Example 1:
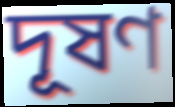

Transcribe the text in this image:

দূষণ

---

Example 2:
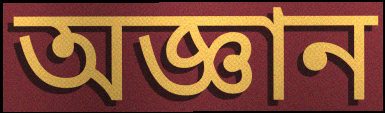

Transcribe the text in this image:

অজ্ঞান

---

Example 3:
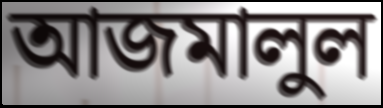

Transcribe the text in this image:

আজমালুল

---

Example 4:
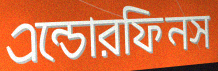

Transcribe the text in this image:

এন্ডোরফিনস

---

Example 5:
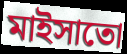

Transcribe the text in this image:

মাইসাতো